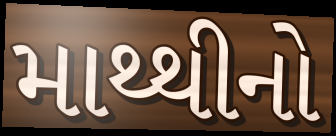
માથ્થીનો